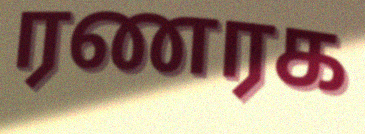
ரணரக